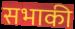
सभाकी